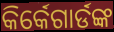
କିର୍କେଗାର୍ଡଙ୍କ